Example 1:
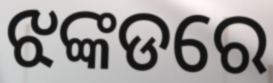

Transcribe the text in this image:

ଝଙ୍କଡରେ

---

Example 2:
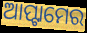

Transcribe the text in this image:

ଆପ୍ଟାମେର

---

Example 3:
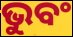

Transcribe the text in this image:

ଭୁବଂ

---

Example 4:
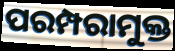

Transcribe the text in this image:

ପରମ୍ପରାମୁକ୍ତ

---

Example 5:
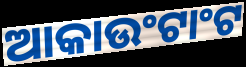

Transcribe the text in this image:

ଆକାଉଂଟାଂଟ